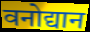
वनोद्यान